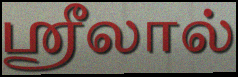
ஸ்ரீலால்